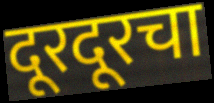
दूरदूरचा